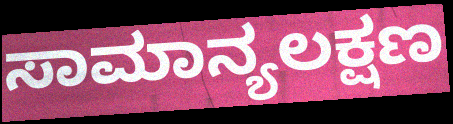
ಸಾಮಾನ್ಯಲಕ್ಷಣ